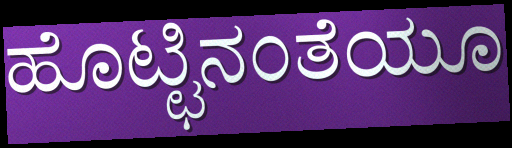
ಹೊಟ್ಟಿನಂತೆಯೂ